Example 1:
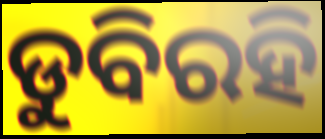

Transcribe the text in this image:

ଡୁବିରହି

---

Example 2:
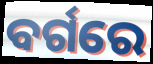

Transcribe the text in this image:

ବର୍ଗରେ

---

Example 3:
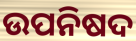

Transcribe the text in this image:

ଉପନିଷଦ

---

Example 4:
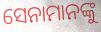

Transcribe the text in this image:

ସେନାମାନଙ୍କୁ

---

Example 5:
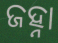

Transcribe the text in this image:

ଜହ୍ନା